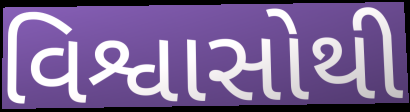
વિશ્વાસોથી